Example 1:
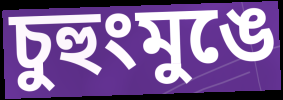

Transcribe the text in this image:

চুহুংমুঙে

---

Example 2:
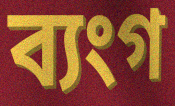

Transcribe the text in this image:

ব্যংগ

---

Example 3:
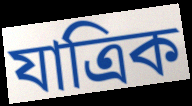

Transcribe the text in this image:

যাত্ৰিক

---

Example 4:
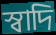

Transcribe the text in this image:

স্বাদি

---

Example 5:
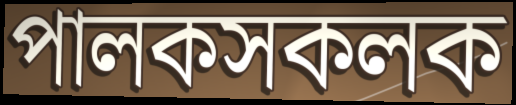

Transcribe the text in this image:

পালকসকলক